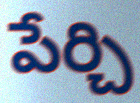
పేర్చి